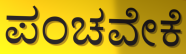
ಪಂಚವೇಕೆ